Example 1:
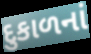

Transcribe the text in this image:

દુકાળનાં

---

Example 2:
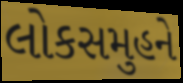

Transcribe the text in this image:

લોકસમુહને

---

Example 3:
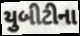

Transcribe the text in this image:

યુબીટીના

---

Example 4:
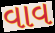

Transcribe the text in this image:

વાવ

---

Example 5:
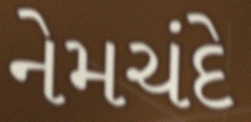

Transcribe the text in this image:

નેમચંદે